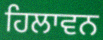
ਹਿਲਾਵਨ